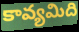
కావ్యమిది